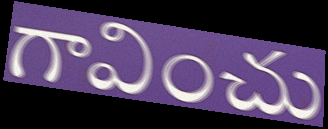
గావించు